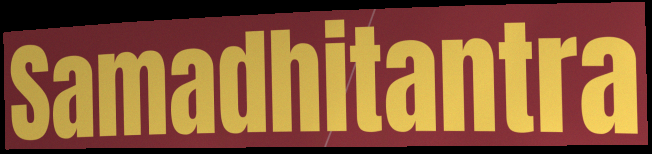
Samadhitantra